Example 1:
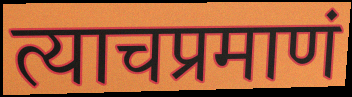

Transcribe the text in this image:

त्याचप्रमाणं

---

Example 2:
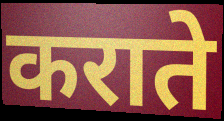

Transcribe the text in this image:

कराते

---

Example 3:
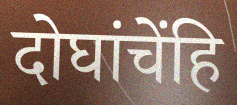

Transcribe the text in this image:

दोघांचेंहि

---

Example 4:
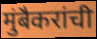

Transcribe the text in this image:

मुंबैकरांची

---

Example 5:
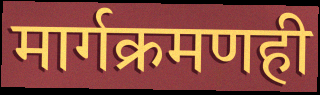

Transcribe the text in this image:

मार्गक्रमणही